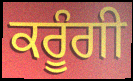
ਕਰੂੰਗੀ